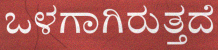
ಒಳಗಾಗಿರುತ್ತದೆ